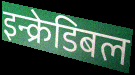
इन्क्रेडिबल